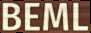
BEML